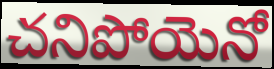
చనిపోయెనో